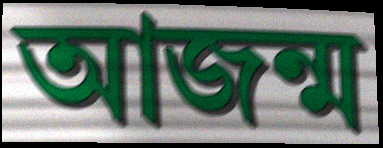
আজন্ম